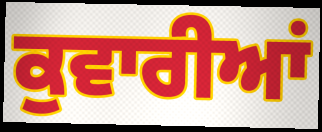
ਕੁਵਾਰੀਆਂ